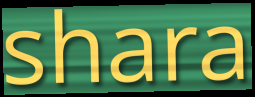
shara